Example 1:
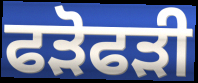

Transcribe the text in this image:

ਫੜੋਫੜੀ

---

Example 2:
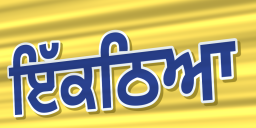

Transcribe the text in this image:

ਇੱਕਠਿਆ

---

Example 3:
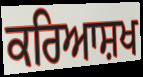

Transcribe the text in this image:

ਕਰਿਆਸ਼ਖ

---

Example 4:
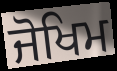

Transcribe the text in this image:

ਜੋਖਿਮ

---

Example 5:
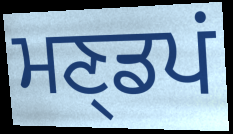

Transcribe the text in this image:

ਮਣ੍ਡਪਂ